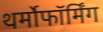
थर्मोफॉर्मिंग